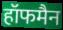
हॉफमैन